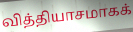
வித்தியாசமாகக்